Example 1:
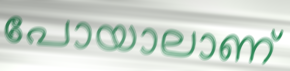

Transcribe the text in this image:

പോയാലാണ്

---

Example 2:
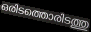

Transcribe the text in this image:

ഒരിടത്തൊരിടത്തു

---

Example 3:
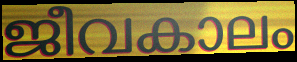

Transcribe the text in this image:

ജീവകാലം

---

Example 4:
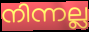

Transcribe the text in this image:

നിന്നല്ല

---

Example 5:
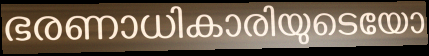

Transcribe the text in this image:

ഭരണാധികാരിയുടെയോ